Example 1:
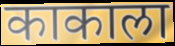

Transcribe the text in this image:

काकाला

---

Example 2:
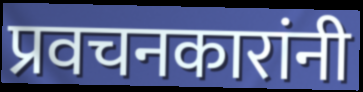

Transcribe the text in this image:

प्रवचनकारांनी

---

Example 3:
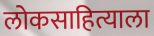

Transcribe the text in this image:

लोकसाहित्याला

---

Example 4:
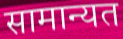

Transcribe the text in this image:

सामान्यत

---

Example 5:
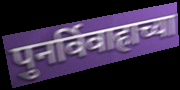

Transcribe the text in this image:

पुनर्विवाहाच्या